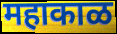
महाकाळ